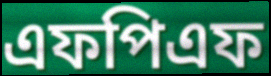
এফপিএফ